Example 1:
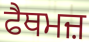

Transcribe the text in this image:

ਫੈਥਮਜ਼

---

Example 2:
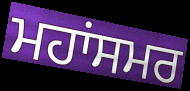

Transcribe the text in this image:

ਮਹਾਂਸਮਰ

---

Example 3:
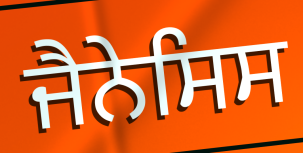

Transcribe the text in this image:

ਜੈਨੇਸਿਸ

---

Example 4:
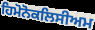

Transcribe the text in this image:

ਹਿਮੋਨੋਕਲਿਸੀਅਮ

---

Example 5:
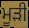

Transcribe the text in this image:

ਮੂੜੀ